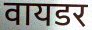
वायडर